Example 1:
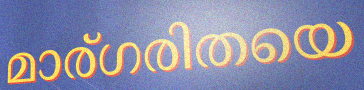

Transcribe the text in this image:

മാര്ഗരിതയെ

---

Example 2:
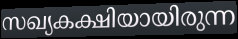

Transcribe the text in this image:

സഖ്യകക്ഷിയായിരുന്ന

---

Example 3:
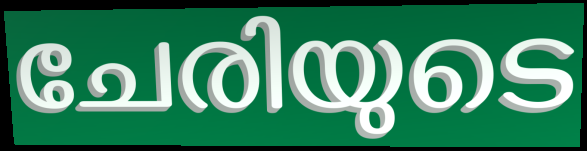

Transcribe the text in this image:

ചേരിയുടെ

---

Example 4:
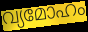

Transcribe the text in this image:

വ്യമോഹം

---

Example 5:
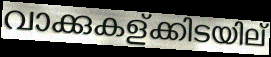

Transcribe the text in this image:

വാക്കുകള്ക്കിടയില്